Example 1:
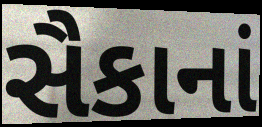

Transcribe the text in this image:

સૈકાનાં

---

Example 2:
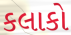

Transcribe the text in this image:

કલાકો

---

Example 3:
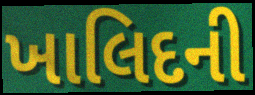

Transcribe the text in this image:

ખાલિદની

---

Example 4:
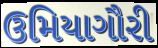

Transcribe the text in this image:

ઉમિયાગૌરી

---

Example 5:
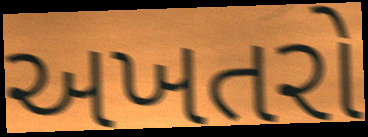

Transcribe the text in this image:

અખતરો